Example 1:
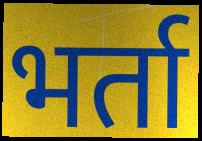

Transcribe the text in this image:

भर्ता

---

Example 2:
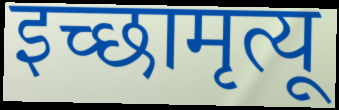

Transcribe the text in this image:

इच्छामृत्यू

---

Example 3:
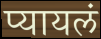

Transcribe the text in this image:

प्यायलं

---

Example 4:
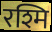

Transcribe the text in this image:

रश्मि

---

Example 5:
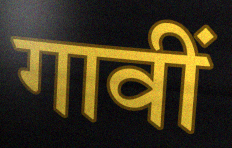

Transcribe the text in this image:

गावीं